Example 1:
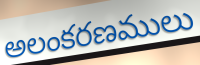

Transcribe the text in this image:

అలంకరణములు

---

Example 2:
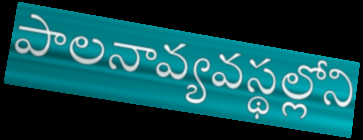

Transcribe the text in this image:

పాలనావ్యవస్థల్లోని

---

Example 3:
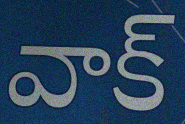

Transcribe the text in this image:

వాక్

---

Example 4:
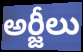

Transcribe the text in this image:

అర్జీలు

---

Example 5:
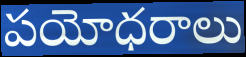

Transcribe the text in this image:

పయోధరాలు